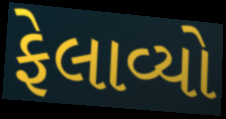
ફેલાવ્યો